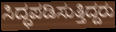
ಸಿದ್ಧಪಡಿಸುತ್ತಿದ್ದರು